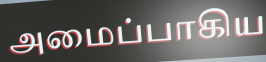
அமைப்பாகிய